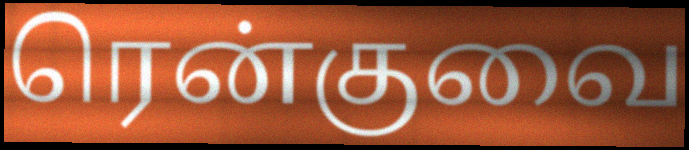
ரென்குவை